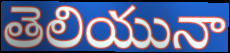
తెలియునా